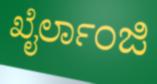
ಖೈರ್ಲಾಂಜಿ